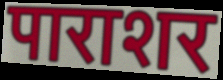
पाराशर